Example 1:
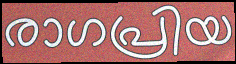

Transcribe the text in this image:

രാഗപ്രിയ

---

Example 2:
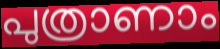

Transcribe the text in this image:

പുത്രാണാം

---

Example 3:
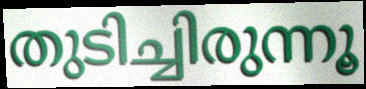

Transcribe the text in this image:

തുടിച്ചിരുന്നൂ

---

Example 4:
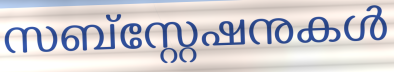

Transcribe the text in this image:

സബ്സ്റ്റേഷനുകൾ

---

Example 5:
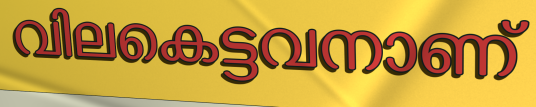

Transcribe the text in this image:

വിലകെട്ടവനാണ്